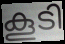
കൂടി